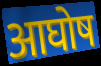
आघोष